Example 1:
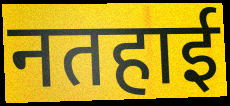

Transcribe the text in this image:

नतहाई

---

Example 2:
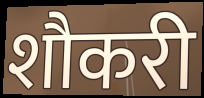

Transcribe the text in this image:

शौकरी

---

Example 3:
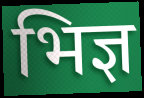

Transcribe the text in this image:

भिज्ञ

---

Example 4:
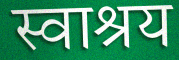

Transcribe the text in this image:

स्वाश्रय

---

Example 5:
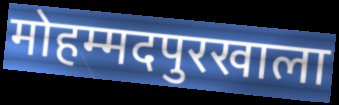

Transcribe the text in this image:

मोहम्मदपुरखाला